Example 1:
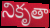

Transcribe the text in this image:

నికృతా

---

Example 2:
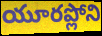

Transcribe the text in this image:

యూరప్లోని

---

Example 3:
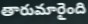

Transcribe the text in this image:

తారుమారైంది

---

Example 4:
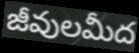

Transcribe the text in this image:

జీవులమీద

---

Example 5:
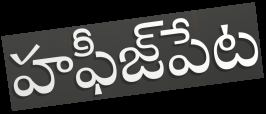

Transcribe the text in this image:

హఫీజ్‌పేట